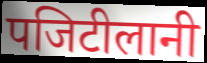
पजिटीलानी